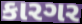
કારગર